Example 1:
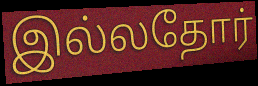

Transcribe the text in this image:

இல்லதோர்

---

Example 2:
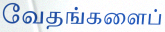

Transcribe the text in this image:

வேதங்களைப்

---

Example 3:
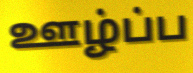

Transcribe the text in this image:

ஊழ்ப்ப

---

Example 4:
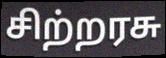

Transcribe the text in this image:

சிற்றரசு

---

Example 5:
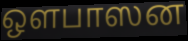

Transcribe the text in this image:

ஒளபாஸன